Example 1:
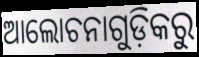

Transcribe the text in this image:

ଆଲୋଚନାଗୁଡ଼ିକରୁ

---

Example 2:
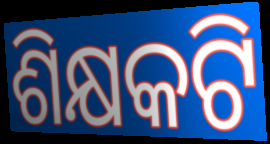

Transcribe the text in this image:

ଶିକ୍ଷକଟି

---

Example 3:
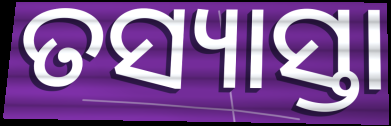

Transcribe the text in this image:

ତସ୍ୟାସ୍ତା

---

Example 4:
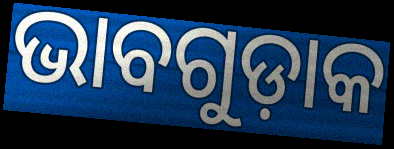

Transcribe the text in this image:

ଭାବଗୁଡ଼ାକ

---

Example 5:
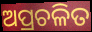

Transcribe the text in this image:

ଅପ୍ରଚଳିତ